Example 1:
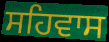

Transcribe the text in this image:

ਸਹਿਵਾਸ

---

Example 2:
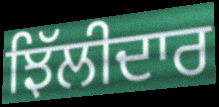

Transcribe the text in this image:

ਝਿੱਲੀਦਾਰ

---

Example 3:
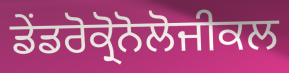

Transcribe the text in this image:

ਡੇਂਡਰੋਕ੍ਰੋਨੋਲੋਜੀਕਲ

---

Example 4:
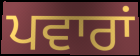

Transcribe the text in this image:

ਪਵਾਰਾਂ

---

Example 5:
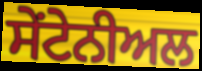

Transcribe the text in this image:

ਸੇਂਟੇਨੀਅਲ